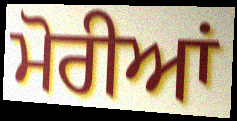
ਮੋਰੀਆਂ